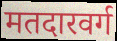
मतदारवर्ग